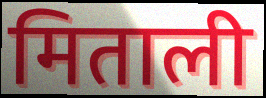
मिताली